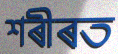
শৰীৰত